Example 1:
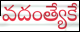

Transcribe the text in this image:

వదంత్యేకే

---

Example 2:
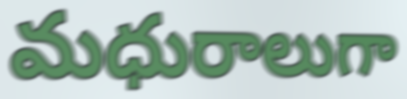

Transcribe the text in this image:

మధురాలుగా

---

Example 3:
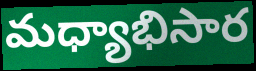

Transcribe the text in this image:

మధ్యాభిసార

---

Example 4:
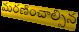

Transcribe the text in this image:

మరణించాల్సిన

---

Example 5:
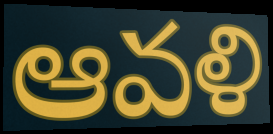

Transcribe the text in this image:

ఆవళి